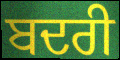
ਬਦਰੀ